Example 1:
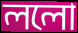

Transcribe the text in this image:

ললো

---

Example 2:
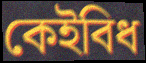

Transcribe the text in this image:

কেইবিধ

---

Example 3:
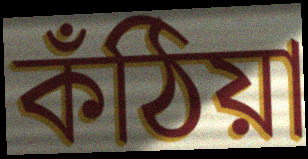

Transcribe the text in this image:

কঁঠিয়া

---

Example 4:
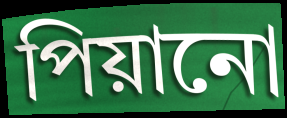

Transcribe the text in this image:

পিয়ানো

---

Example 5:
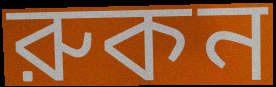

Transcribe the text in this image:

ৰুকন